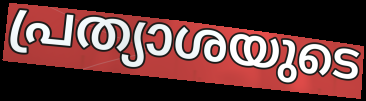
പ്രത്യാശയുടെ